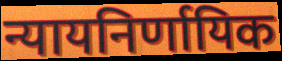
न्यायनिर्णायिक